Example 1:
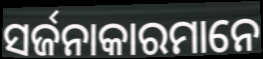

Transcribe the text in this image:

ସର୍ଜନାକାରମାନେ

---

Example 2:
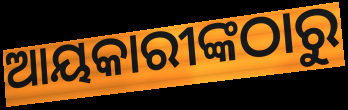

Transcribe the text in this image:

ଆୟକାରୀଙ୍କଠାରୁ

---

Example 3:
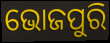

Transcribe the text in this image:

ଭୋଜପୁରି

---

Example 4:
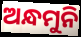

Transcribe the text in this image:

ଅନ୍ଧମୁନି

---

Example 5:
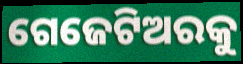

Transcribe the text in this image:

ଗେଜେଟିଅରକୁ